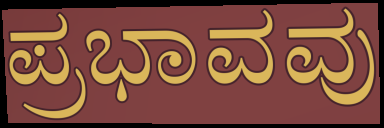
ಪ್ರಭಾವವು